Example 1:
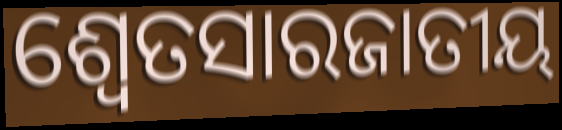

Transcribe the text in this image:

ଶ୍ଵେତସାରଜାତୀୟ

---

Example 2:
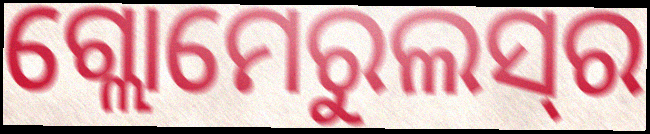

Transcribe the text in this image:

ଗ୍ଲୋମେରୁଲସ୍‌ର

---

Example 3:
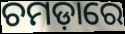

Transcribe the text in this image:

ଚମଡ଼ାରେ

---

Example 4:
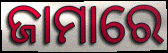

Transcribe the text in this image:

ଜାମାରେ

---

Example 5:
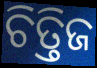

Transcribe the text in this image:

ଚିତ୍ତିଜ